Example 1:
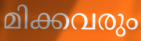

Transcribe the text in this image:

മിക്കവരും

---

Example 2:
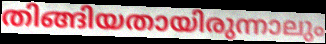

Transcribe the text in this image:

തിങ്ങിയതായിരുന്നാലും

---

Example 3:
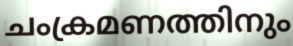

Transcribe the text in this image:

ചംക്രമണത്തിനും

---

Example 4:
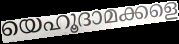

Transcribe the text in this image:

യെഹൂദാമക്കളെ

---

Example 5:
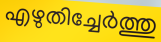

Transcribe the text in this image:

എഴുതിച്ചേർത്തു